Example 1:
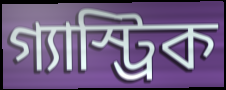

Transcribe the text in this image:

গ্যাস্ট্রিক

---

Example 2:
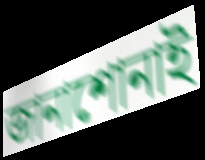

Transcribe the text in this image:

জানাশোনাই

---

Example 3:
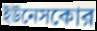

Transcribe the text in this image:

ইউনেসকোর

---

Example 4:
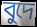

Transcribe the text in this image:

বুদে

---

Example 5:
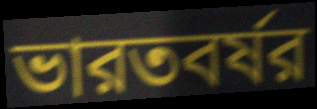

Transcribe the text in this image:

ভারতবর্ষর